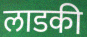
लाडकी